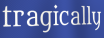
tragically